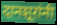
दानशूरांनी